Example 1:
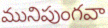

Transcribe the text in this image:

మునిపుంగవా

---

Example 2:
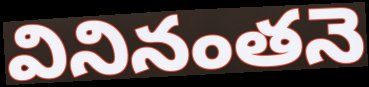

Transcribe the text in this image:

వినినంతనె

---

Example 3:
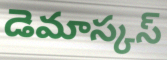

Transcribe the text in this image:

డెమాస్కస్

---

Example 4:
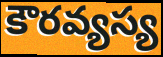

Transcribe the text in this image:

కౌరవ్యస్య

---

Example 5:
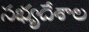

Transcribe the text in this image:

సభ్యదేశాల